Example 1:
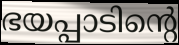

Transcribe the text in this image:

ഭയപ്പാടിന്റെ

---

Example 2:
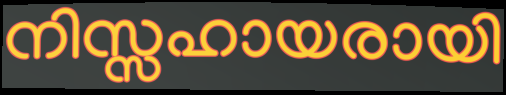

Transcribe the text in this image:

നിസ്സഹായരായി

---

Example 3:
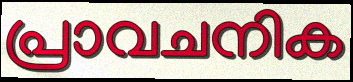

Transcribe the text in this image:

പ്രാവചനിക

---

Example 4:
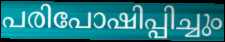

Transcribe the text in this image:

പരിപോഷിപ്പിച്ചും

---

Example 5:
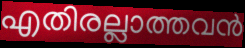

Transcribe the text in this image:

എതിരല്ലാത്തവൻ